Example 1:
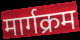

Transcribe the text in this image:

मार्गक्रम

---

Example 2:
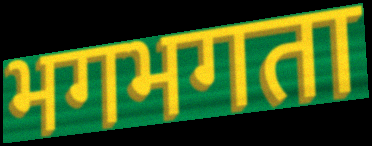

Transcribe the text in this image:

भगभगता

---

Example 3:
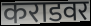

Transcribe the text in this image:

कराडवर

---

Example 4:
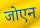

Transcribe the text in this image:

जोएन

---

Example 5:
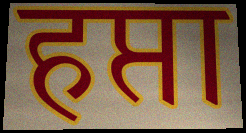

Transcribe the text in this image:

हप्ता